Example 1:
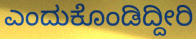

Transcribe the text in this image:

ಎಂದುಕೊಂಡಿದ್ದೀರಿ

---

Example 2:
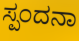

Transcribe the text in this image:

ಸ್ಪಂದನಾ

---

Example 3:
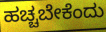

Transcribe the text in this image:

ಹಚ್ಚಬೇಕೆಂದು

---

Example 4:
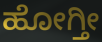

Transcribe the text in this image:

ಹೋಗ್ತೀ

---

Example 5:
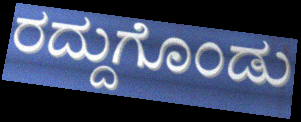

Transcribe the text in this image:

ರದ್ದುಗೊಂಡು